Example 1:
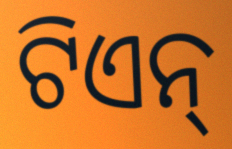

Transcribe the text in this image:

ଟିଏନ୍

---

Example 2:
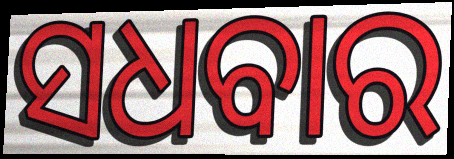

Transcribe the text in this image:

ସଧବାର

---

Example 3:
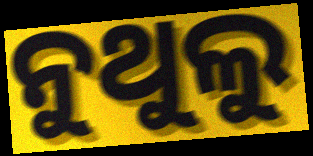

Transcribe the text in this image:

ନୁଥୁଲୁ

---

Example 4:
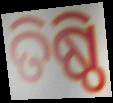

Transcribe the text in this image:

ତିଷ୍ଠି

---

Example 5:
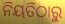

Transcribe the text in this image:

ନିୟତିଠାରୁ